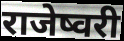
राजेष्वरी